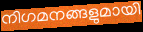
നിഗമനങ്ങളുമായി